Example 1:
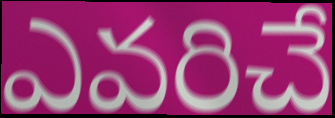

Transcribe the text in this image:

ఎవరిచే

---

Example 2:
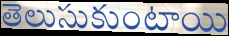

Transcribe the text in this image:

తెలుసుకుంటాయి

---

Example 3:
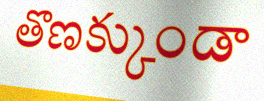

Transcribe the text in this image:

తొణక్కుండా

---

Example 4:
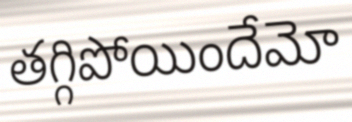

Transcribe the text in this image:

తగ్గిపోయిందేమో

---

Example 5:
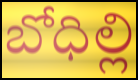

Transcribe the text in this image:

బోధిల్లి